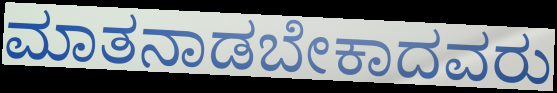
ಮಾತನಾಡಬೇಕಾದವರು